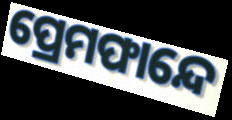
ପ୍ରେମଫାନ୍ଦେ